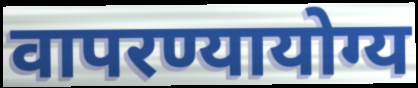
वापरण्यायोग्य